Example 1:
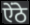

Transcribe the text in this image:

ऐंठे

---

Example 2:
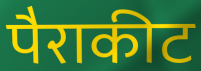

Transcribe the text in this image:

पैराकीट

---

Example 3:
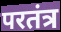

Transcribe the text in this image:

परतंत्र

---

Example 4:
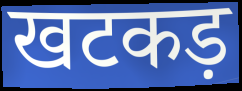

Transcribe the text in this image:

खटकड़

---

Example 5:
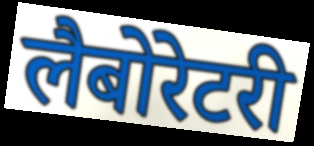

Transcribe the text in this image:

लैबोरेटरी